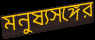
মনুষ্যসঙ্গের